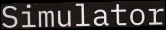
Simulator